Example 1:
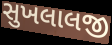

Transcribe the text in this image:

સુખલાલજી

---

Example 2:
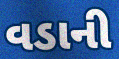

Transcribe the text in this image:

વડાની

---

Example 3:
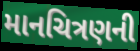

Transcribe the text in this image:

માનચિત્રણની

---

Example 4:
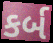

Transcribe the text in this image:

કર્બ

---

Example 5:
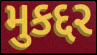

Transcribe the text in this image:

મુકદ્દર